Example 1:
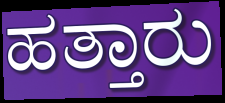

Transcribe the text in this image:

ಹತ್ತಾರು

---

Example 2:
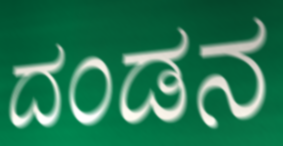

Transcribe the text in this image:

ದಂಡನ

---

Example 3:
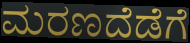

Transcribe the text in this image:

ಮರಣದೆಡೆಗೆ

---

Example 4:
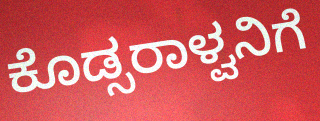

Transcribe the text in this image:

ಕೊಡ್ಸರಾಳ್ವನಿಗೆ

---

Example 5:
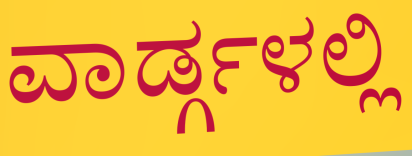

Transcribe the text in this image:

ವಾರ್ಡ್ಗಳಲ್ಲಿ